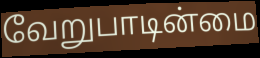
வேறுபாடின்மை